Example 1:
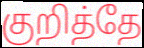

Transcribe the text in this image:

குறித்தே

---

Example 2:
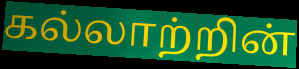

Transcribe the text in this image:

கல்லாற்றின்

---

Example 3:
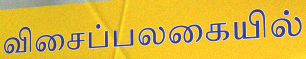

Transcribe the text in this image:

விசைப்பலகையில்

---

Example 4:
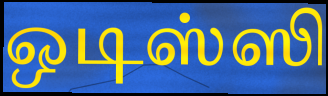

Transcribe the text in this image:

ஒடிஸ்ஸி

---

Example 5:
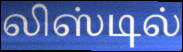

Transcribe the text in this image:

லிஸ்டில்